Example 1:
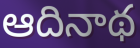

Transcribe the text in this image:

ఆదినాథ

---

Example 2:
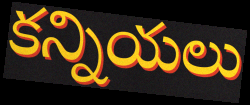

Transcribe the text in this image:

కన్నియలు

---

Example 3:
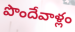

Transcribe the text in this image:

పొందేవాళ్లం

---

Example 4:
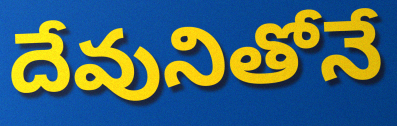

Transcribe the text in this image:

దేవునితోనే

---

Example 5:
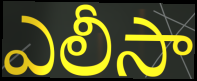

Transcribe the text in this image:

ఎలీసా